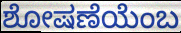
ಶೋಷಣೆಯೆಂಬ